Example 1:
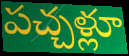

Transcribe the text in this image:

పచ్చళ్లూ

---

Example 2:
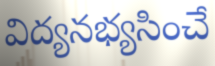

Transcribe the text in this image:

విద్యనభ్యసించే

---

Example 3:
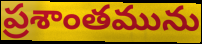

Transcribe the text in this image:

ప్రశాంతమును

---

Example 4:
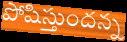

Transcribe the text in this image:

పోషిస్తుందన్న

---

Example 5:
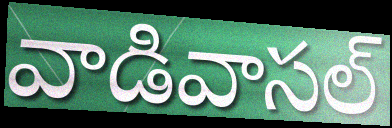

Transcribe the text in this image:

వాడివాసల్